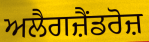
ਅਲੈਗਜ਼ੈਂਡਰੋਜ਼